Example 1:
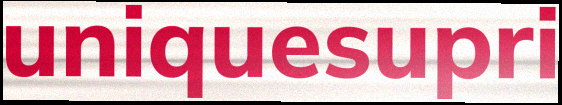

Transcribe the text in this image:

uniquesupri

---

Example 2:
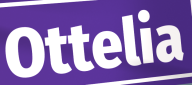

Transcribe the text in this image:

Ottelia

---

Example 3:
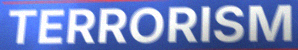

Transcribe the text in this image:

TERRORISM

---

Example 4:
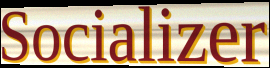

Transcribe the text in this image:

Socializer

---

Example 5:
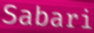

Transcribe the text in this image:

Sabari